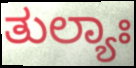
ತುಲ್ಯಾಃ